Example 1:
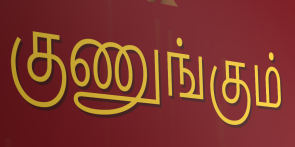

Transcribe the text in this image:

குணுங்கும்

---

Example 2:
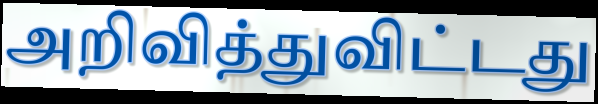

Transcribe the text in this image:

அறிவித்துவிட்டது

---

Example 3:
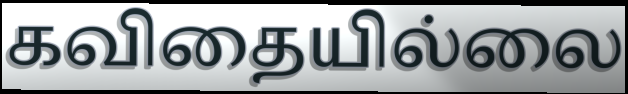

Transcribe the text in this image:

கவிதையில்லை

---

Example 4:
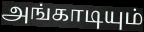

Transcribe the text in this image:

அங்காடியும்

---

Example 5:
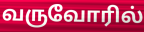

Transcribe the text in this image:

வருவோரில்